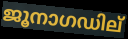
ജൂനാഗഡില്